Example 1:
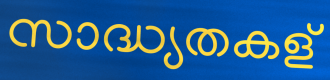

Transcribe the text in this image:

സാദ്ധ്യതകള്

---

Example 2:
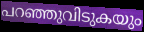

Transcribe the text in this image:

പറഞ്ഞുവിടുകയും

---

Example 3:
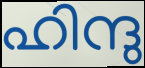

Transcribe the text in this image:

ഹിന്ദു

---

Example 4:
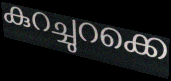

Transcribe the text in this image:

കുറച്ചുറക്കെ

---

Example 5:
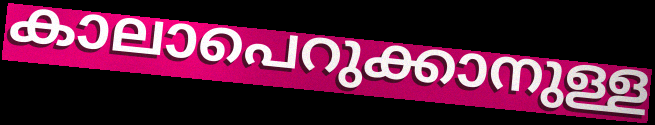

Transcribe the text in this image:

കാലാപെറുക്കാനുള്ള